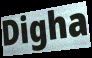
Digha